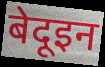
बेदूइन